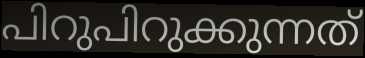
പിറുപിറുക്കുന്നത്